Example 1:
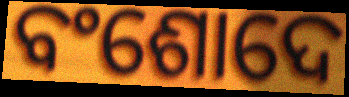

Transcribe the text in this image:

ବଂଶୋଦେ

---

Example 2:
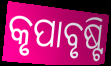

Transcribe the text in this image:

କୃପାବୃଷ୍ଟି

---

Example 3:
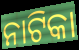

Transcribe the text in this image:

ନାଟିକା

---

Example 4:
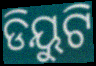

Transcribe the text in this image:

ଡିୟୁଟି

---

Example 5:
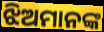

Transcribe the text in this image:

ଝିଅମାନଙ୍କ